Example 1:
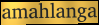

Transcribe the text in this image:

amahlanga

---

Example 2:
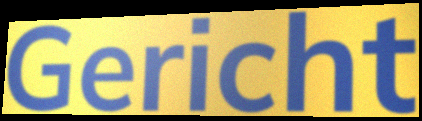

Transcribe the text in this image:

Gericht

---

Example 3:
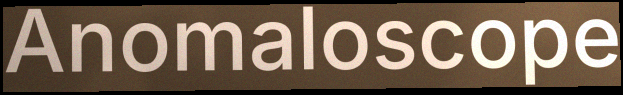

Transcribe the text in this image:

Anomaloscope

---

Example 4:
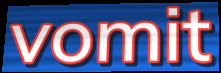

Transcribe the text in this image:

vomit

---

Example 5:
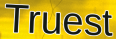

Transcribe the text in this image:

Truest